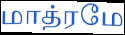
மாத்ரமே